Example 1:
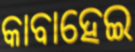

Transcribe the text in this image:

କାବାହେଇ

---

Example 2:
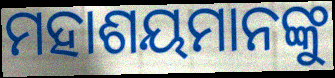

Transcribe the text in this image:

ମହାଶୟମାନଙ୍କୁ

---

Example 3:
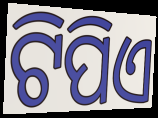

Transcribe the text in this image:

ଟିପିଏ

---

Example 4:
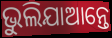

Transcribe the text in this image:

ଭୁଲିଯାଆନ୍ତେ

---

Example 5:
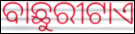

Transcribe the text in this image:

ବାଛୁରୀଟାଏ